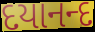
દયાનન્દ